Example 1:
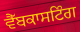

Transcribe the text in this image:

ਵੈੱਬਕਾਸਟਿੰਗ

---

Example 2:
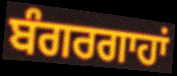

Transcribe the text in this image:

ਬੰਗਰਗਾਹਾਂ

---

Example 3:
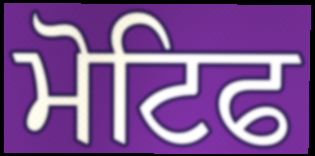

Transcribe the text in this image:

ਮੋਟਿਫ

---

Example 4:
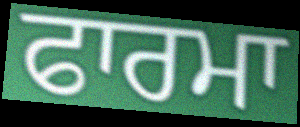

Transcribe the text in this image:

ਫਾਰਮਾ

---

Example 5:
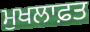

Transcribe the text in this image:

ਮੁਖਲਾਫ਼ਤ